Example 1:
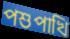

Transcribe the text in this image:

পশুপাখি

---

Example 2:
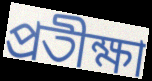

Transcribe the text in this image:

প্রতীক্ষা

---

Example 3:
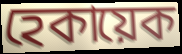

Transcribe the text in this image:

হেকায়েক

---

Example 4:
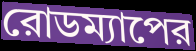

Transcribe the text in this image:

রোডম্যাপের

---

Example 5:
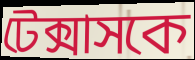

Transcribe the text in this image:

টেক্সাসকে